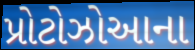
પ્રોટોઝોઆના